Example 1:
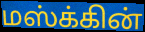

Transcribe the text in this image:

மஸ்க்கின்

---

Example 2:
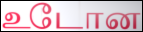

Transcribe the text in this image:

உடோன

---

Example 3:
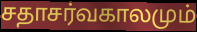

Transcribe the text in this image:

சதாசர்வகாலமும்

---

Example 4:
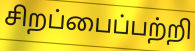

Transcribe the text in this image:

சிறப்பைப்பற்றி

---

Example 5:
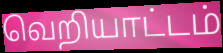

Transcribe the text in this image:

வெறியாட்டம்